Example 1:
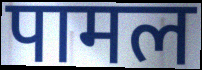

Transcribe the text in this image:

पामल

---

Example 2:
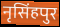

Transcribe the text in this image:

नृसिंहपुर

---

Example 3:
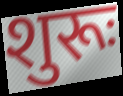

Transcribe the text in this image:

शुरूः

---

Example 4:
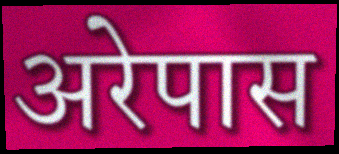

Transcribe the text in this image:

अरेपास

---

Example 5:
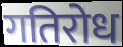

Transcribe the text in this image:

गतिरोध